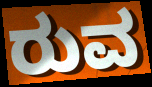
ರುವ